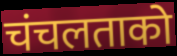
चंचलताको